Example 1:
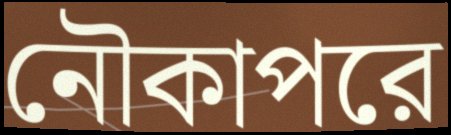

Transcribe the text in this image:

নৌকাপরে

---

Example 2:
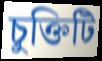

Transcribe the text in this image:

চুক্তিটি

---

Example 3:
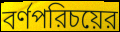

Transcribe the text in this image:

বর্ণপরিচয়ের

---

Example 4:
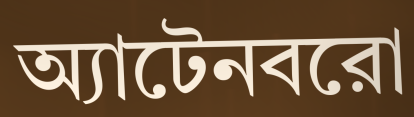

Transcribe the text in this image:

অ্যাটেনবরো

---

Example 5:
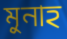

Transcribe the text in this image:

মুনাহ